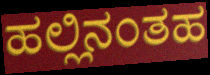
ಹಲ್ಲಿನಂತಹ